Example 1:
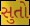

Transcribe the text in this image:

સુતો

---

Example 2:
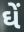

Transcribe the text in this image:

ઘેં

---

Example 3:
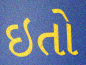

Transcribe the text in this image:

ઇતો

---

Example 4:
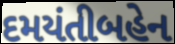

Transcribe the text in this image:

દમયંતીબહેન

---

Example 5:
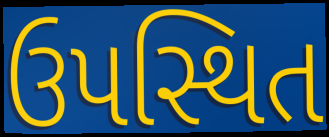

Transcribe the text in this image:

ઉપસ્થિત